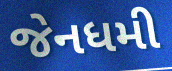
જેનધમી